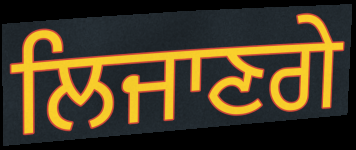
ਲਿਜਾਣਗੇ